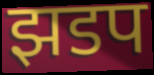
झडप